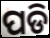
ପଡି